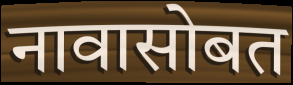
नावासोबत